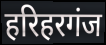
हरिहरगंज